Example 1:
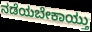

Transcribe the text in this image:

ನಡೆಯಬೇಕಾಯ್ತು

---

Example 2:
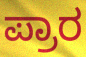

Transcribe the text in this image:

ಪ್ರಾರ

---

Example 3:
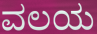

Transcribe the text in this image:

ವಲಯ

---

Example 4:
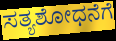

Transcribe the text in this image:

ಸತ್ಯಶೋಧನೆಗೆ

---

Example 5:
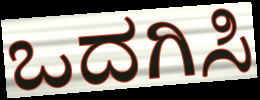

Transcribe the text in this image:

ಒದಗಿಸಿ